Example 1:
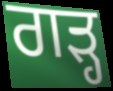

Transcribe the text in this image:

ਗੜ੍ਹ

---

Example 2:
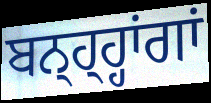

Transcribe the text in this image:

ਬਨ੍ਹ੍ਹ੍ਹਾਂਗਾਂ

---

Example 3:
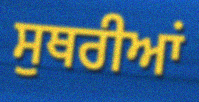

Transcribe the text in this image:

ਸੁਥਰੀਆਂ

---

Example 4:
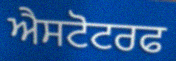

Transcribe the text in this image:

ਐਸਟੋਟਰਫ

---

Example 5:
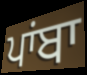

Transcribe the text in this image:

ਪਾਂਬਾ